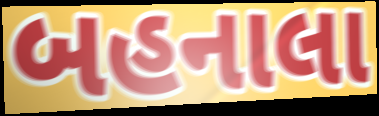
બહનાલા